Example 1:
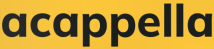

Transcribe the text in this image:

acappella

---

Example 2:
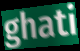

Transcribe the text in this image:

ghati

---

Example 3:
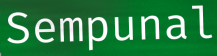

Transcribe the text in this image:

Sempunal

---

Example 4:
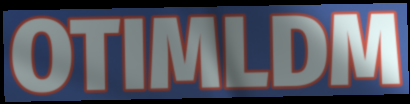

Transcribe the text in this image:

OTIMLDM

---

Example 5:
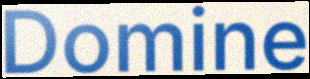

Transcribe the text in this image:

Domine